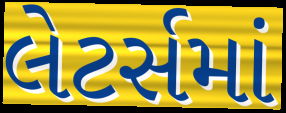
લેટર્સમાં